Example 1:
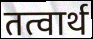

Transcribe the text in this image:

तत्वार्थ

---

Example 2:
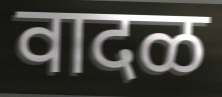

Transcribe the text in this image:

वादळ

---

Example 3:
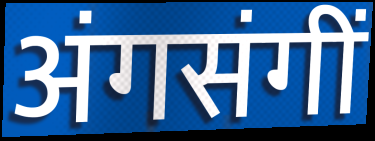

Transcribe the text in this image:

अंगसंगीं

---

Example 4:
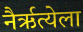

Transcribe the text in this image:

नैर्ऋत्येला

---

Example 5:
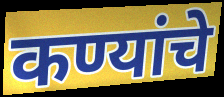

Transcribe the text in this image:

कण्यांचे